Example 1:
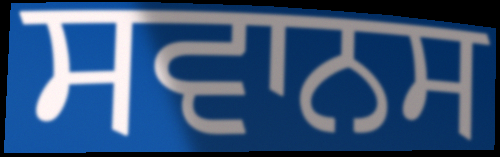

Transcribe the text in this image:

ਸਵਾਨਸ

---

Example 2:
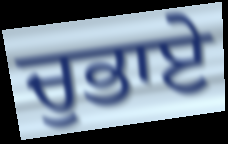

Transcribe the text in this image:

ਚੁਭਾਏ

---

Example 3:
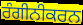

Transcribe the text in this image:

ਰੰਗੀਨੀਕਰਨ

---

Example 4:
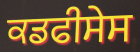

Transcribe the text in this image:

ਕਡਫੀਸੇਸ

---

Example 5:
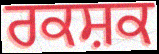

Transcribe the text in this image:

ਰਕਸ਼ਕ